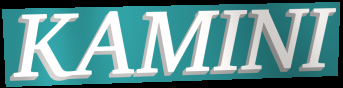
KAMINI